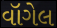
વૉગેલ